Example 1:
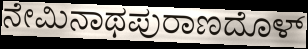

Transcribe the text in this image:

ನೇಮಿನಾಥಪುರಾಣದೊಳ್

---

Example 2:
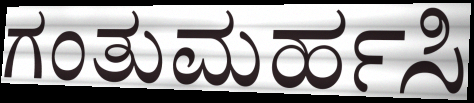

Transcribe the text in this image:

ಗಂತುಮರ್ಹಸಿ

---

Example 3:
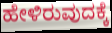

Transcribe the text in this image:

ಹೇಳಿರುವುದಕ್ಕೆ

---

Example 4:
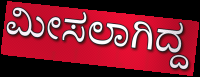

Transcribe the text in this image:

ಮೀಸಲಾಗಿದ್ದ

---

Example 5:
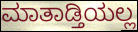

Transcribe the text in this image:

ಮಾತಾಡ್ತಿಯಲ್ಲ